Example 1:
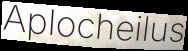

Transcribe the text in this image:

Aplocheilus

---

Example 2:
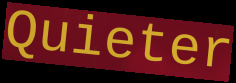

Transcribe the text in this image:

Quieter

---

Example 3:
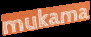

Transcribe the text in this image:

mukama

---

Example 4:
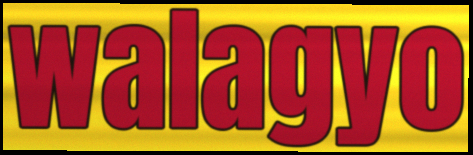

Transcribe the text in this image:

walagyo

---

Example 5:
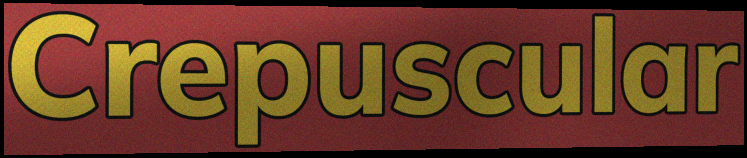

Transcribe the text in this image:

Crepuscular